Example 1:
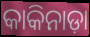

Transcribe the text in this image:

କାକିନାଡ଼ା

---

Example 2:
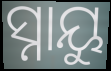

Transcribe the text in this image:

ସ୍ନାୟୁ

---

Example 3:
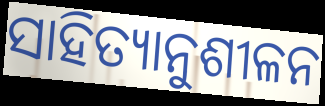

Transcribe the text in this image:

ସାହିତ୍ୟାନୁଶୀଳନ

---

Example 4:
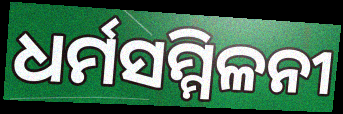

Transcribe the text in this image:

ଧର୍ମସମ୍ମିଳନୀ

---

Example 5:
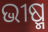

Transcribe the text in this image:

ଭୀଷ୍ମ